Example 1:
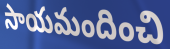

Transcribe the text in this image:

సాయమందించి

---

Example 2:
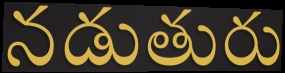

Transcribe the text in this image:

నడుతురు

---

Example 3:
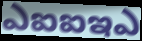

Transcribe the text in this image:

ఎఐఐఇఎ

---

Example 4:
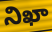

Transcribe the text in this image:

నిఖా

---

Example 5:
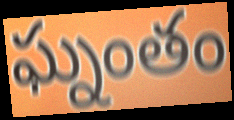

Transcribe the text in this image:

ఘ్నంతం